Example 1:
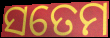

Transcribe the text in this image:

ସତେମ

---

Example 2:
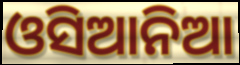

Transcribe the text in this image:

ଓସିଆନିଆ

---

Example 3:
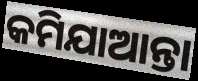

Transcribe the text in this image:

କମିଯାଆନ୍ତା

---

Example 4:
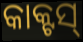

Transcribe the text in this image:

କାକ୍ଟସ୍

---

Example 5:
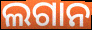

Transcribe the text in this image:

ଲଗାନ